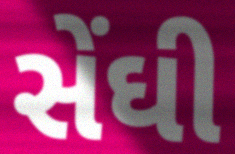
સેંઘી